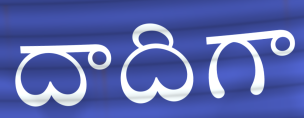
దాదిగా